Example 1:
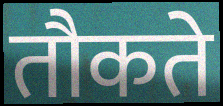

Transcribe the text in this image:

तौकते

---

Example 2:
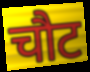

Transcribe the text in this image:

चौट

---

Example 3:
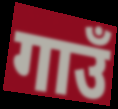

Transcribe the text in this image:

गाउँ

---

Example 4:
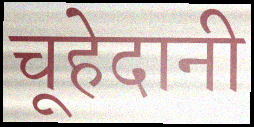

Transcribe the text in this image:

चूहेदानी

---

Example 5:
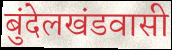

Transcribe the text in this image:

बुंदेलखंडवासी